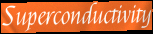
Superconductivity